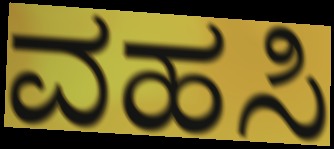
ವಹಸಿ